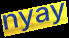
nyay